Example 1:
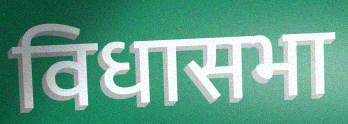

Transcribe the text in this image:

विधासभा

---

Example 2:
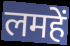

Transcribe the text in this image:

लमहें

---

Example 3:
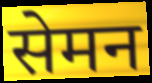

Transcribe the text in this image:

सेमन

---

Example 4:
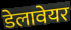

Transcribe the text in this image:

डेलावेयर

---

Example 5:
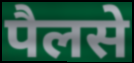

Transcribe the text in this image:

पैलसे